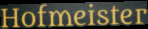
Hofmeister